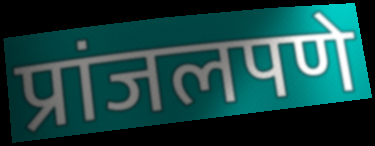
प्रांजलपणे